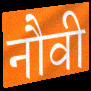
नौवी